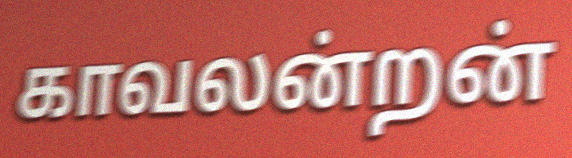
காவலன்றன்